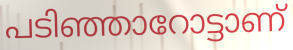
പടിഞ്ഞാറോട്ടാണ്